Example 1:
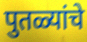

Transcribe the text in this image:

पुतळ्यांचे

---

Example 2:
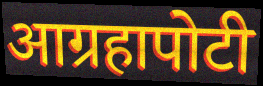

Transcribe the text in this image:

आग्रहापोटी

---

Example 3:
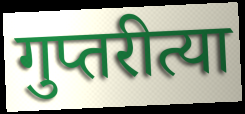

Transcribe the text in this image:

गुप्तरीत्या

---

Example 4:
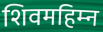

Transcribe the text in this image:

शिवमहिम्न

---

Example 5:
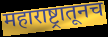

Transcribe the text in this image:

महाराष्ट्रातूनच